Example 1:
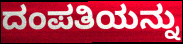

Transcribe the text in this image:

ದಂಪತಿಯನ್ನು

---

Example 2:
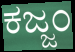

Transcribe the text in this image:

ಕಜ್ಜಂ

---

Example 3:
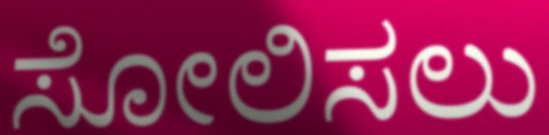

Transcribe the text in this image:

ಸೋಲಿಸಲು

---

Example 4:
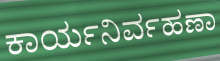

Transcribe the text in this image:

ಕಾರ್ಯನಿರ್ವಹಣಾ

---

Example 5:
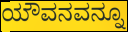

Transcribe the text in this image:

ಯೌವನವನ್ನೂ